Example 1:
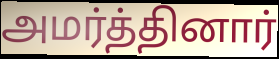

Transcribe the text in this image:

அமர்த்தினார்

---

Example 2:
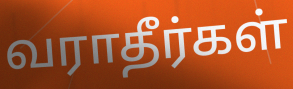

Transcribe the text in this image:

வராதீர்கள்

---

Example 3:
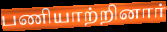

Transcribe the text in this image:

பணியாற்றினார்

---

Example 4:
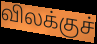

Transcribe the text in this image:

விலக்குச்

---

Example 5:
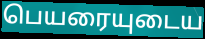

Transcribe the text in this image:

பெயரையுடைய